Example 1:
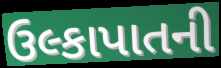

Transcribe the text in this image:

ઉલ્કાપાતની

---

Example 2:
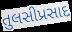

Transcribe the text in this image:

તુલસીપ્રસાદ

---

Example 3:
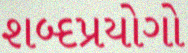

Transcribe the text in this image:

શબ્દપ્રયોગો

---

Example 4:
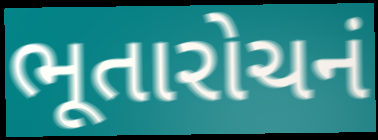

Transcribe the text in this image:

ભૂતારોચનં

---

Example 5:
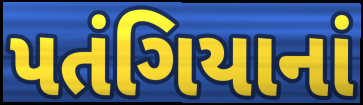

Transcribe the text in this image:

પતંગિયાનાં